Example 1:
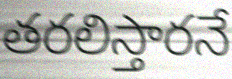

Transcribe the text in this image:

తరలిస్తారనే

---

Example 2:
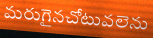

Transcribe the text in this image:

మరుగైనచోటువలెను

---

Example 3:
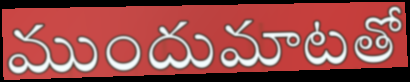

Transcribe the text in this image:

ముందుమాటతో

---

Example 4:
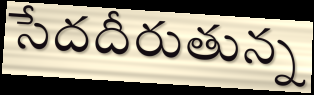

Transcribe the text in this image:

సేదదీరుతున్న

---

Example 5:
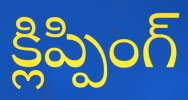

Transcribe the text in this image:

క్లిప్పింగ్